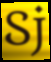
Sj